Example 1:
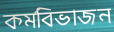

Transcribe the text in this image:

কর্মবিভাজন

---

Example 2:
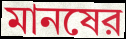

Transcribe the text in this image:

মানষের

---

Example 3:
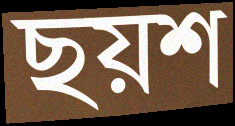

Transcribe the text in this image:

ছয়শ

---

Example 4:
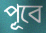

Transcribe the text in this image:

পূবে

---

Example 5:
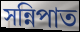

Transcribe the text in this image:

সন্নিপাত